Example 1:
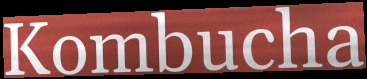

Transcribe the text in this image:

Kombucha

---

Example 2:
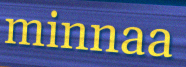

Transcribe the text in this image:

minnaa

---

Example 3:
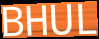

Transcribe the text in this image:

BHUL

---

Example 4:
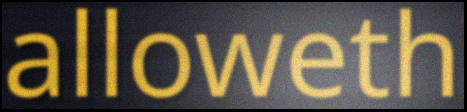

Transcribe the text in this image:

alloweth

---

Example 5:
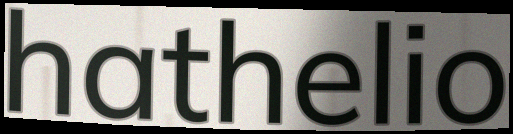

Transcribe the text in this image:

hathelio